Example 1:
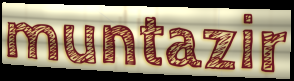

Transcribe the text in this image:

muntazir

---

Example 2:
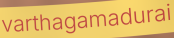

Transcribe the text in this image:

varthagamadurai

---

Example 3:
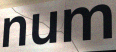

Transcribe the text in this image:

num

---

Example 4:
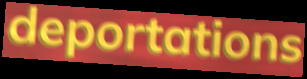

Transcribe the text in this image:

deportations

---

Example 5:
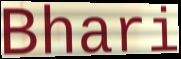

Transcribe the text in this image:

Bhari